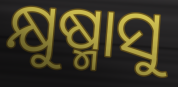
କ୍ଷୁଷ୍ମାସୁ